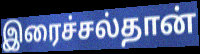
இரைச்சல்தான்